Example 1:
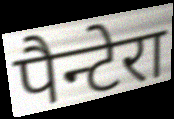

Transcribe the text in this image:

पैन्टेरा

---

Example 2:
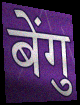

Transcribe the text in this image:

बेंगु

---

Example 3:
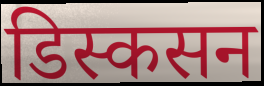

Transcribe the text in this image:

डिस्कसन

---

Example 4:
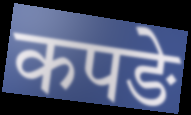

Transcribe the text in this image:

कपङे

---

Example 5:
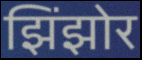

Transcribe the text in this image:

झिंझोर